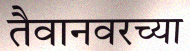
तैवानवरच्या